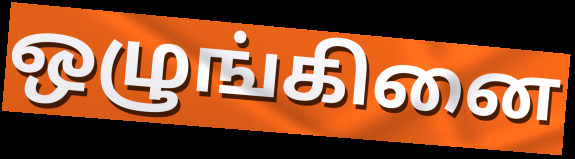
ஒழுங்கினை